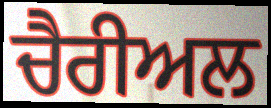
ਚੈਰੀਅਲ